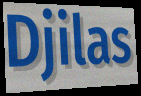
Djilas